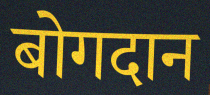
बोगदान